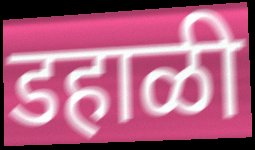
डहाळी